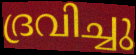
ദ്രവിച്ചു